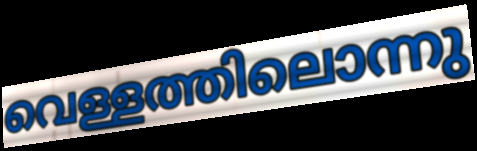
വെള്ളത്തിലൊന്നു